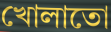
খোলাতো